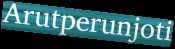
Arutperunjoti